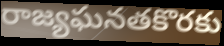
రాజ్యఘనతకొరకు